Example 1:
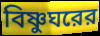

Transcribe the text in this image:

বিষ্ণুঘরের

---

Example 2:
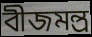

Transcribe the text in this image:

বীজমন্ত্র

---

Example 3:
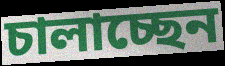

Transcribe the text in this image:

চালাচ্ছেন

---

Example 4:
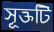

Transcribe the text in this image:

সূক্তটি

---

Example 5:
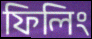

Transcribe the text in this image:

ফিলিং